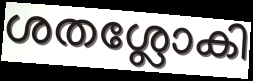
ശതശ്ലോകി